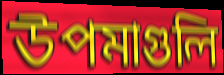
উপমাগুলি